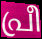
പ്രീ